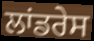
ਲਾਂਡਰੇਸ